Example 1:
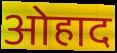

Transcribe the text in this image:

ओहाद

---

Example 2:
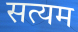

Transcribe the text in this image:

सत्यम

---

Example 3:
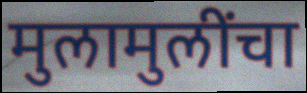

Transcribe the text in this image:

मुलामुलींचा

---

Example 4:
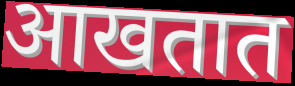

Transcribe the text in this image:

आखतात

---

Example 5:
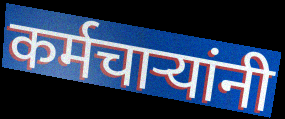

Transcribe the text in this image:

कर्मचाऱ्यांनी